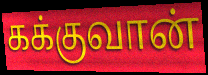
கக்குவான்